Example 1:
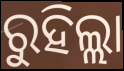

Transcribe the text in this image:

ରୁହିଲ୍ଲା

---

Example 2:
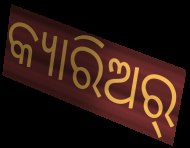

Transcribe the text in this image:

କ୍ୟାରିଅର୍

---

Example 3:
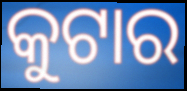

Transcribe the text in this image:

କୁଟାର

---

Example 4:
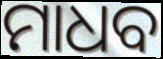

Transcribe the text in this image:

ମାଧବ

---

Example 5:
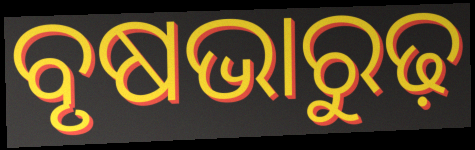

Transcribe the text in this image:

ବୃଷଭାରୁଢ଼